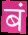
बं